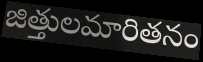
జిత్తులమారితనం